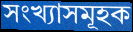
সংখ্যাসমূহক